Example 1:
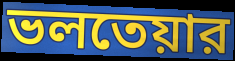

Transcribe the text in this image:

ভলতেয়ার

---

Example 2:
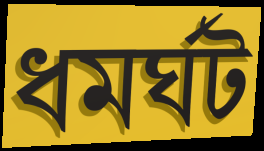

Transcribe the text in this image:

ধমর্ঘট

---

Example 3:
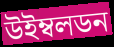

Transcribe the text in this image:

উইম্বলডন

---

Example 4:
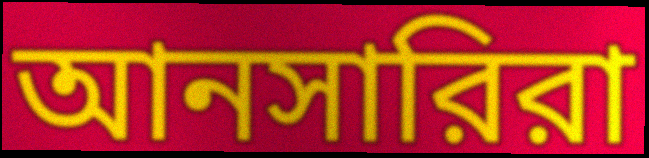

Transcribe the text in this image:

আনসারিরা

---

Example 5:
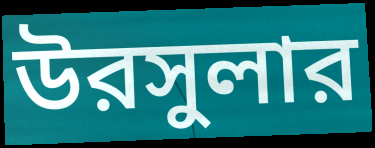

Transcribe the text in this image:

উরসুলার